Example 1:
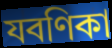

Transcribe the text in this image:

যবণিকা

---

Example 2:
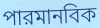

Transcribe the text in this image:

পারমানবিক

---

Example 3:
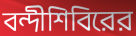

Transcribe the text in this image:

বন্দীশিবিরের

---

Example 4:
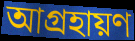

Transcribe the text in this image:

আগ্রহায়ণ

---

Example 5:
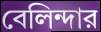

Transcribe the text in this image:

বেলিন্দার